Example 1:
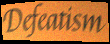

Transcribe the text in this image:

Defeatism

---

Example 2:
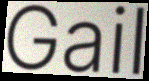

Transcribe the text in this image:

Gail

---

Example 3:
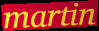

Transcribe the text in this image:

martin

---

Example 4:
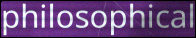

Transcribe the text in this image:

philosophical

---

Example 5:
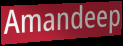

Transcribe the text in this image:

Amandeep